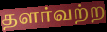
தளர்வற்ற